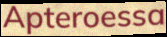
Apteroessa